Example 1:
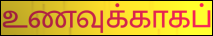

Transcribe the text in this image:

உணவுக்காகப்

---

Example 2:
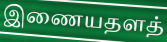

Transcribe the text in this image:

இணையதளத்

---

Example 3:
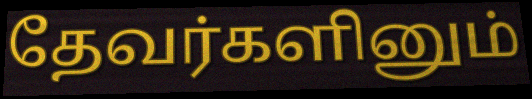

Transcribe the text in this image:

தேவர்களினும்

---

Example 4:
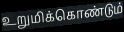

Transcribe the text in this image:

உறுமிக்கொண்டும்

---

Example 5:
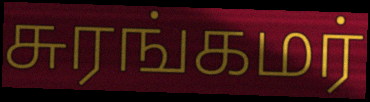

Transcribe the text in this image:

சுரங்கமர்